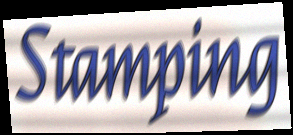
Stamping